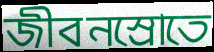
জীবনস্রোতে